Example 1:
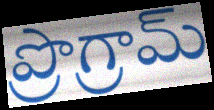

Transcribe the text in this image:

ప్రొగ్రామ్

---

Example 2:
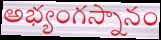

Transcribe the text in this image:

అభ్యంగస్నానం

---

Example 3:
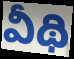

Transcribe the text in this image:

వీథి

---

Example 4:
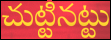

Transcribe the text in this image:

చుట్టినట్టు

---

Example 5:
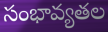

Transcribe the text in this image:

సంభావ్యతల